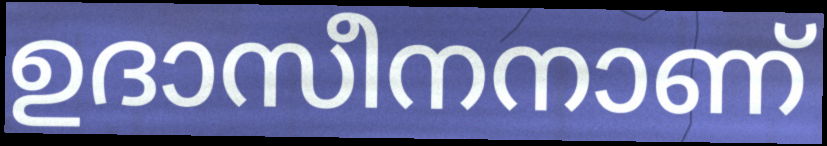
ഉദാസീനനാണ്